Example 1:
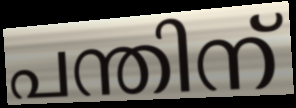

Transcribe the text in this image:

പന്തിന്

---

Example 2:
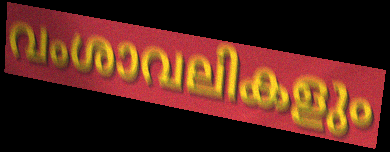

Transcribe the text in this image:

വംശാവലികളും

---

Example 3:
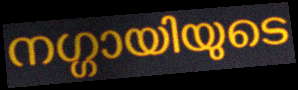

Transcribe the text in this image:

നഗ്ഗായിയുടെ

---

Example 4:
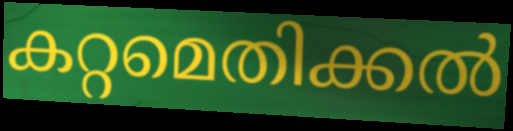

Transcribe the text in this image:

കറ്റമെതിക്കൽ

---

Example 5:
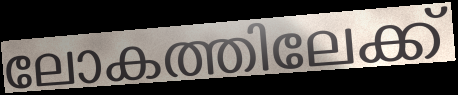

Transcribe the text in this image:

ലോകത്തിലേക്ക്